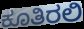
ಕೂತಿರಲಿ